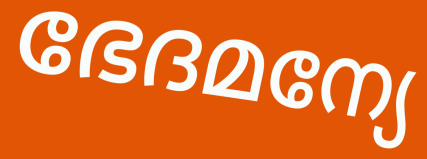
ഭേദമന്യേ